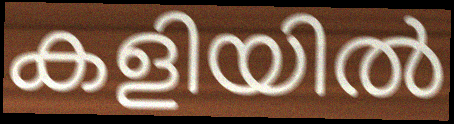
കളിയിൽ